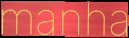
manha